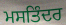
ਮਸਤਿੰਦਰ